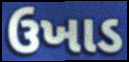
ઉખાડ